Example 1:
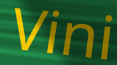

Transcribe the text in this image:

Vini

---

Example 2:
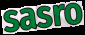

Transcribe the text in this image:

sasro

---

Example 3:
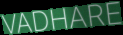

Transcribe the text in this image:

VADHARE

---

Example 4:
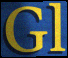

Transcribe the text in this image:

Gl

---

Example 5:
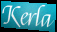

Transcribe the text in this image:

Kerla